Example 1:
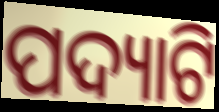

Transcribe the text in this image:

ପଦ୍ୟାଟି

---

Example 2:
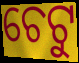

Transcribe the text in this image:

ଚେଟୁ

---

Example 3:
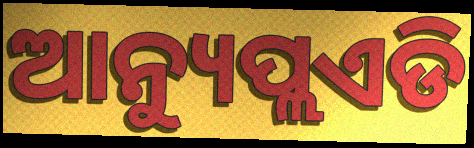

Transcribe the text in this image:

ଆନ୍ୟୁପ୍ଲଏଡି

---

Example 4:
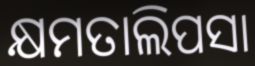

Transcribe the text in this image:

କ୍ଷମତାଲିପସା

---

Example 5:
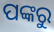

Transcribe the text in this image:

ପଙ୍କରୁ